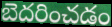
బెదరించడం